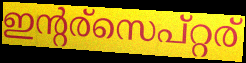
ഇന്റര്സെപ്റ്റര്